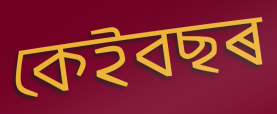
কেইবছৰ